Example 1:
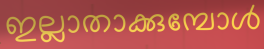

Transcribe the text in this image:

ഇല്ലാതാക്കുമ്പോൾ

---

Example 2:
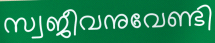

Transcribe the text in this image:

സ്വജീവനുവേണ്ടി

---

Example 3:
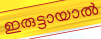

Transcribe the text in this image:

ഇരുട്ടായാൽ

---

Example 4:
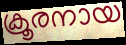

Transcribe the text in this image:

ക്രൂരനായ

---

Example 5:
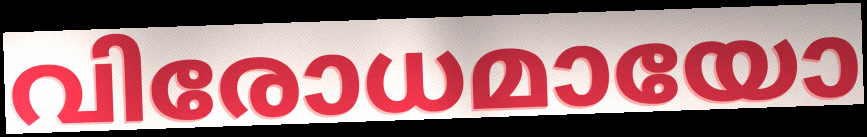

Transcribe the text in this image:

വിരോധമായോ